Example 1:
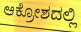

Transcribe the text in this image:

ಆಕ್ರೋಶದಲ್ಲಿ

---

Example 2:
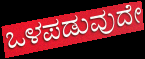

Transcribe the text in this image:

ಒಳಪಡುವುದೇ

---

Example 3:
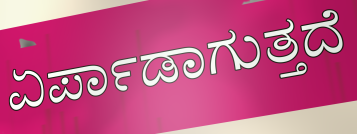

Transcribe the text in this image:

ಏರ್ಪಾಡಾಗುತ್ತದೆ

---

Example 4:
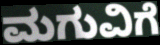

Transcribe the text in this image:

ಮಗುವಿಗೆ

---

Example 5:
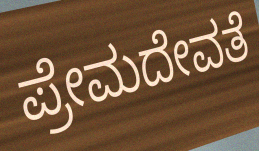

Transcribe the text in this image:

ಪ್ರೇಮದೇವತೆ